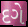
દગે